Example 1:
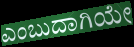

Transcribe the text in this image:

ಎಂಬುದಾಗಿಯೇ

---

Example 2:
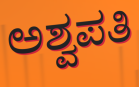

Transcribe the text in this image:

ಅಶ್ವಪತಿ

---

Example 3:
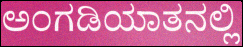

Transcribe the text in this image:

ಅಂಗಡಿಯಾತನಲ್ಲಿ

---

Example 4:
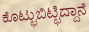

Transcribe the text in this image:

ಕೊಟ್ಟುಬಿಟ್ಟಿದ್ದಾನೆ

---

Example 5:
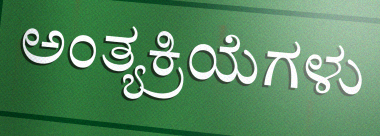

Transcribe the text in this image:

ಅಂತ್ಯಕ್ರಿಯೆಗಳು